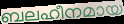
ബലഹീനമായ